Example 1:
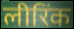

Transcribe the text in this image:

लीरिंक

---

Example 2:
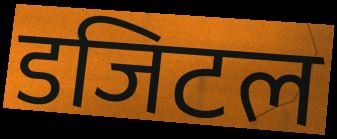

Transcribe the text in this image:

डजिटल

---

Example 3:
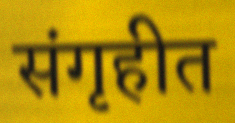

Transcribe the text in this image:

संगृहीत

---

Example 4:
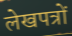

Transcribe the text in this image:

लेखपत्रों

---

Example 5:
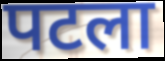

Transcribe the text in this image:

पटला